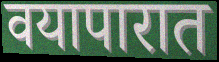
वयापारात